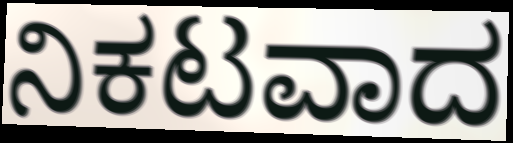
ನಿಕಟವಾದ